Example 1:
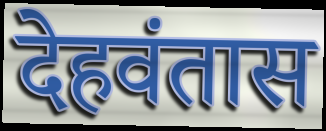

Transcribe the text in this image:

देहवंतास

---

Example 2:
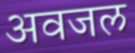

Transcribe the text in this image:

अवजल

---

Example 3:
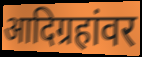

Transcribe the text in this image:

आदिग्रहांवर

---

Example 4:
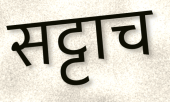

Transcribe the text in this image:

सट्टाच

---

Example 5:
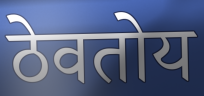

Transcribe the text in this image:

ठेवतोय